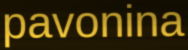
pavonina